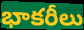
భాకరీలు